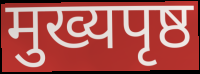
मुख्यपृष्ठ